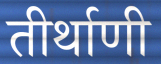
तीर्थाणी